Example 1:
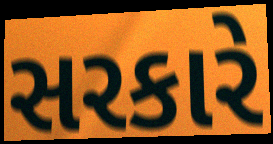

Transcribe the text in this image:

સરકારે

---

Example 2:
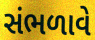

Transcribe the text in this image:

સંભળાવે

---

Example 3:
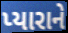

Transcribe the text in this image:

પ્યારાને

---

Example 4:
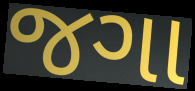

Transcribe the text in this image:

જગા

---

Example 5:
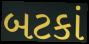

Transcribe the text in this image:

બટકાં